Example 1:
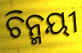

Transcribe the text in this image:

ଚିନ୍ମୟୀ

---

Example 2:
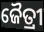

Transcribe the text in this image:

ଜୈତ୍ରୀ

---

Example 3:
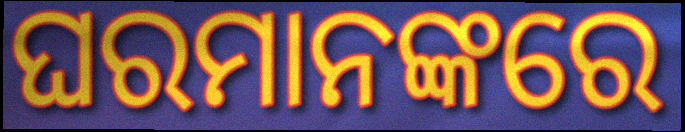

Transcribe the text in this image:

ଘରମାନଙ୍କରେ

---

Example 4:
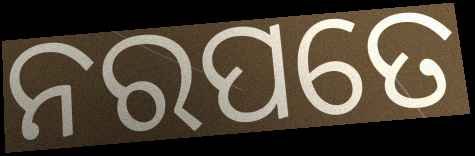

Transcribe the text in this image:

ନରପତେ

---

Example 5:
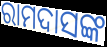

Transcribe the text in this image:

ରାମଦାସଙ୍କ